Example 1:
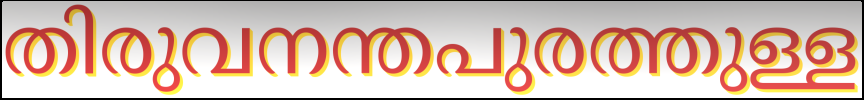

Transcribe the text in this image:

തിരുവനന്തപുരത്തുള്ള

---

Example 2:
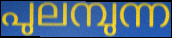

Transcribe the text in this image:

പുലമ്പുന്ന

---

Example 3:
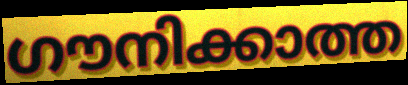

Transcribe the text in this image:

ഗൗനിക്കാത്ത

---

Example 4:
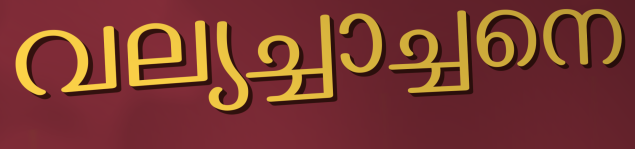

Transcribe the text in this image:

വല്യച്ചാച്ചനെ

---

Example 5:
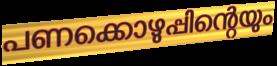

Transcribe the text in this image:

പണക്കൊഴുപ്പിന്റെയും